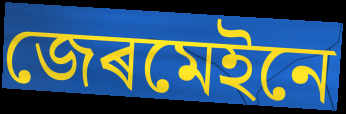
জেৰমেইনে